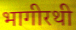
भागीरथी